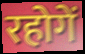
रहोगें